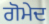
ਗੋਮੇਦ